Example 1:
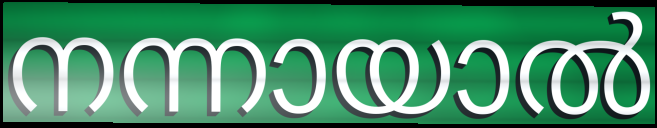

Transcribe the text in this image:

നന്നായാൽ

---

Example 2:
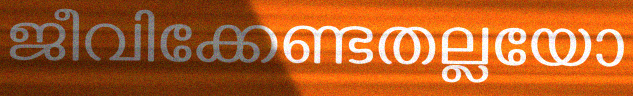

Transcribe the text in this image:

ജീവിക്കേണ്ടതല്ലയോ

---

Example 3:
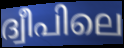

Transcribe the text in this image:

ദ്വീപിലെ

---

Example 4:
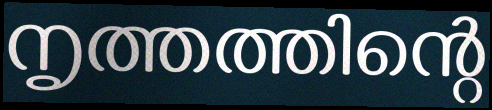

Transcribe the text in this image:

നൃത്തത്തിന്റെ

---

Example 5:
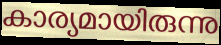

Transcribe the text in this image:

കാര്യമായിരുന്നു